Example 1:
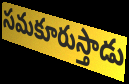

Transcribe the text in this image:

సమకూరుస్తాడు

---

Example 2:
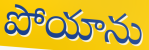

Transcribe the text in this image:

పోయాను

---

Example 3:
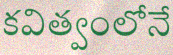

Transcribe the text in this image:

కవిత్వంలోనే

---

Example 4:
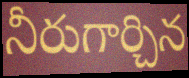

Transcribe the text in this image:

నీరుగార్చిన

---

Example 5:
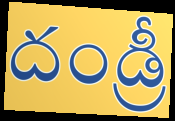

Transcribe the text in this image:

దండ్రీ